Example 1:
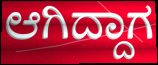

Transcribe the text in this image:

ಆಗಿದ್ದಾಗ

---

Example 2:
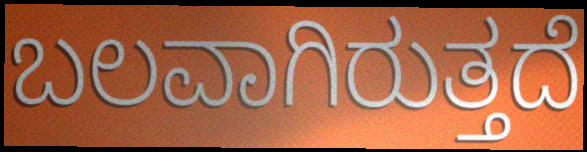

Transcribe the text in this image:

ಬಲವಾಗಿರುತ್ತದೆ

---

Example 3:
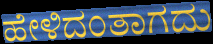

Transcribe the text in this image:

ಹೇಳಿದಂತಾಗದು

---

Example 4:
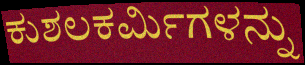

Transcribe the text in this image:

ಕುಶಲಕರ್ಮಿಗಳನ್ನು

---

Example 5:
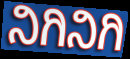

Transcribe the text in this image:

ನಿಗಿನಿಗಿ